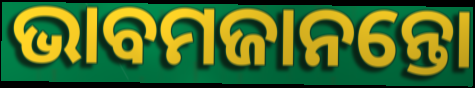
ଭାବମଜାନନ୍ତୋ